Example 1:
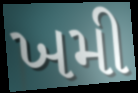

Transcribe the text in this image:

ખમી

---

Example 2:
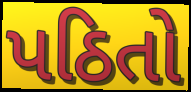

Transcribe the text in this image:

પઠિતો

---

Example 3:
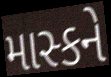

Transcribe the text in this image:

માસ્કને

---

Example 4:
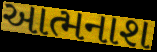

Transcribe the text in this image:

આત્મનાશ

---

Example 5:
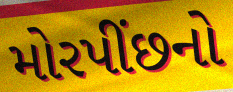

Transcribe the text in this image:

મોરપીંછનો